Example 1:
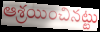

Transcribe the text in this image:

ఆశ్రయించినట్టు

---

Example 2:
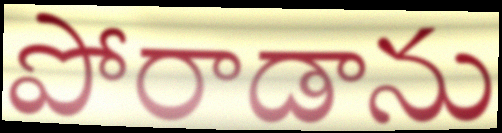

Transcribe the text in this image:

పోరాడాను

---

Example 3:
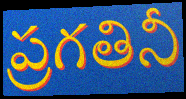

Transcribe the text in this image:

ప్రగతినీ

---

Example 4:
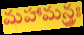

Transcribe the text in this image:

మహామన్త్రః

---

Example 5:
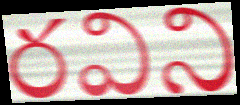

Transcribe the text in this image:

రవిని